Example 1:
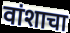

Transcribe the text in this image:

वांशाचा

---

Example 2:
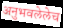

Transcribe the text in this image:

अनुभवलेलेच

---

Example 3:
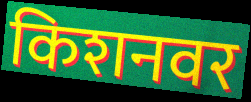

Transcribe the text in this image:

किशनवर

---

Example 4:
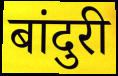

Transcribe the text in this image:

बांदुरी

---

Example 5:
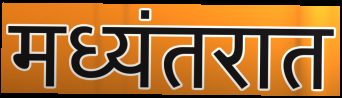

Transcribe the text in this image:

मध्यंतरात